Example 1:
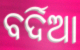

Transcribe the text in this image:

ବର୍ଦିଆ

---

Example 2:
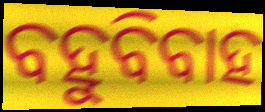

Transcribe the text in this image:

ବହୁବିବାହ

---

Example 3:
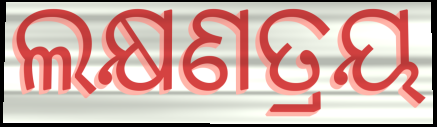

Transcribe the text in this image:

ଲକ୍ଷଣତ୍ରୟ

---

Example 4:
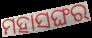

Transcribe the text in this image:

ମହାସଙ୍ଘର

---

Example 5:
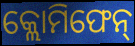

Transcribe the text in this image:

କ୍ଲୋମିଫେନ୍